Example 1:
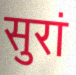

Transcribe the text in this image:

सुरां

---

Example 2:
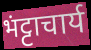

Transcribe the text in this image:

भंट्टाचार्य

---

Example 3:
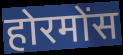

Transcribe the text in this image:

होरमोंस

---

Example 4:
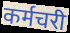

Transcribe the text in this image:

कर्मचरी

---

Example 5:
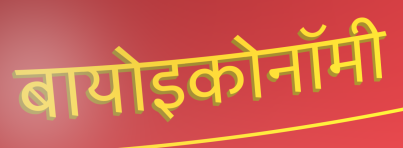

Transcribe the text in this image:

बायोइकोनॉमी